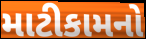
માટીકામનો